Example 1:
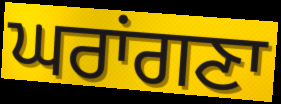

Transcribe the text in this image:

ਘਰਾਂਗਣਾ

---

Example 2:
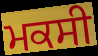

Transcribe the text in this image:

ਮਕਸੀ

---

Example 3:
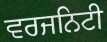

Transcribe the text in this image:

ਵਰਜਨਿਟੀ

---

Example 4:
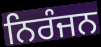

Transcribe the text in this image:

ਨਿਰੰਜਨ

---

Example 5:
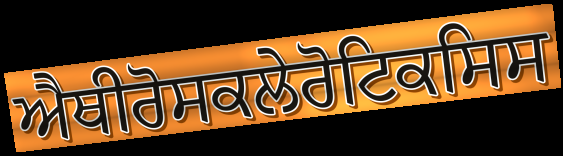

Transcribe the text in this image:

ਐਥੀਰੋਸਕਲੇਰੋਟਿਕਸਿਸ